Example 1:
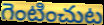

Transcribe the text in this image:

గెంటించుట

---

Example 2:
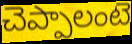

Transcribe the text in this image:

చెప్పాలంటె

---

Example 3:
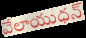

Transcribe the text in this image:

వేలాయుధన్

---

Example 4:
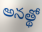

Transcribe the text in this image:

అనత్థో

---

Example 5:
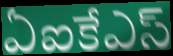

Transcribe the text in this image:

ఏఐకేఎస్